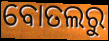
ବୋତଲରୁ